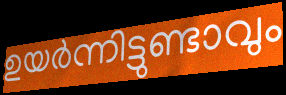
ഉയർന്നിട്ടുണ്ടാവും